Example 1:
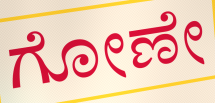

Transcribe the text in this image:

ಗೋಣೇ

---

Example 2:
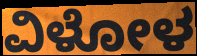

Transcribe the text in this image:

ವಿಳೋಳ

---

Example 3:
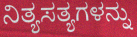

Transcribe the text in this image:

ನಿತ್ಯಸತ್ಯಗಳನ್ನು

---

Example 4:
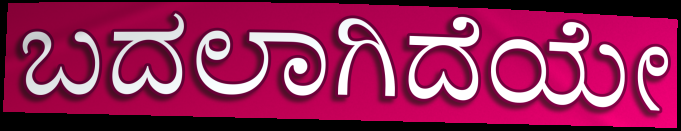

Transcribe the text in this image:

ಬದಲಾಗಿದೆಯೇ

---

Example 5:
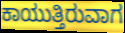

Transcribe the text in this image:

ಕಾಯುತ್ತಿರುವಾಗ